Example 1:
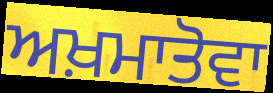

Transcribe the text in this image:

ਅਖ਼ਮਾਤੋਵਾ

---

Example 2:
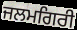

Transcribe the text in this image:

ਜਲਮਗਿਰੀ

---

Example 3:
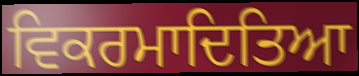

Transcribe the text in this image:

ਵਿਕਰਮਾਦਿਤਿਆ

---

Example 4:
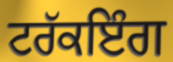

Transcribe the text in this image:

ਟਰੱਕਇੰਗ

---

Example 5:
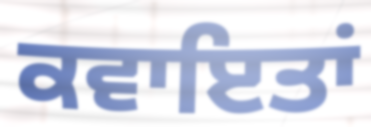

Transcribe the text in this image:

ਕਵਾਇਤਾਂ